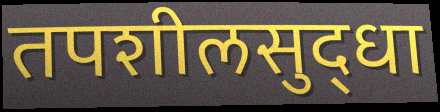
तपशीलसुद्धा